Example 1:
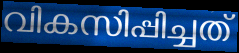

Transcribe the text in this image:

വികസിപ്പിച്ചത്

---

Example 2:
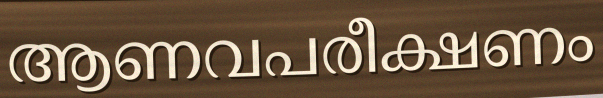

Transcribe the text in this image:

ആണവപരീക്ഷണം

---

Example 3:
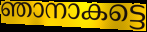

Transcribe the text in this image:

ഞാനാകട്ടെ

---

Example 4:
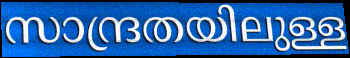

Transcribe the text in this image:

സാന്ദ്രതയിലുള്ള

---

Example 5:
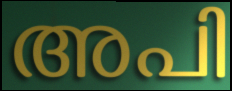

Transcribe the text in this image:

അപി